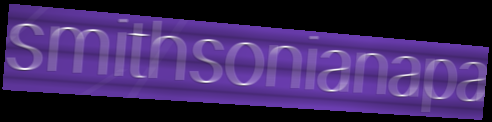
smithsonianapa